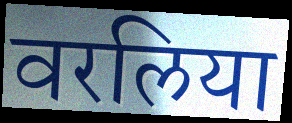
वरलिया